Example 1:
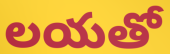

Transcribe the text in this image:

లయతో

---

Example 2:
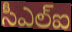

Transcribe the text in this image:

సీఎల్ఐ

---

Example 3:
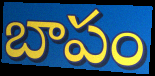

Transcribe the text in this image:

బాపం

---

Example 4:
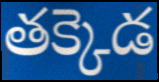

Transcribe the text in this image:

తక్కెడ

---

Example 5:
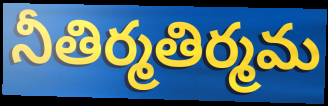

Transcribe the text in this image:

నీతిర్మతిర్మమ